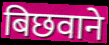
बिछवाने